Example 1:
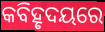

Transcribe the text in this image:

କବିହୃଦୟରେ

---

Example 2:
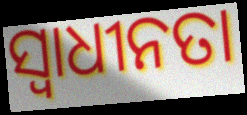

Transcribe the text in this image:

ସ୍ବାଧୀନତା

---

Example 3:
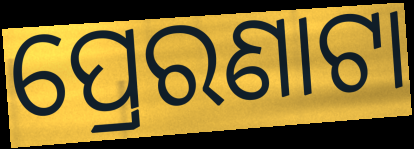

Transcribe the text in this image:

ପ୍ରେରଣାଟା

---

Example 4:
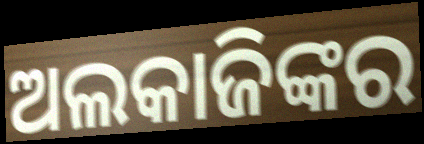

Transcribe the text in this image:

ଅଲକାଜିଙ୍କର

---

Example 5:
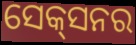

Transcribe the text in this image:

ସେକ୍‌ସନର